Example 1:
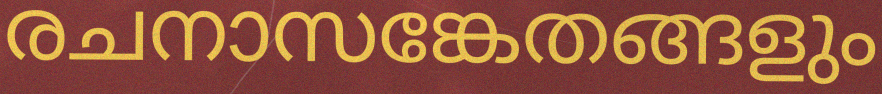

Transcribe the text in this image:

രചനാസങ്കേതങ്ങളും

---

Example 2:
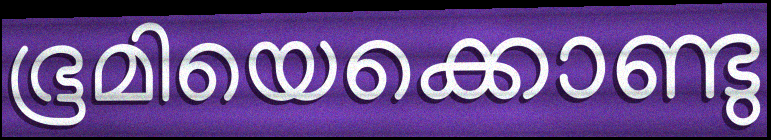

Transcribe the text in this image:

ഭൂമിയെക്കൊണ്ടു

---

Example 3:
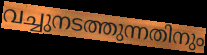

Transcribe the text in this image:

വച്ചുനടത്തുന്നതിനും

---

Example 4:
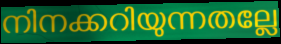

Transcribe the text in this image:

നിനക്കറിയുന്നതല്ലേ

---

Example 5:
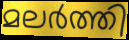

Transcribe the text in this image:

മലർത്തി